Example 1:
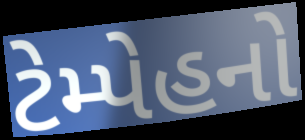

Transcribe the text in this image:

ટેમ્પેહનો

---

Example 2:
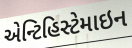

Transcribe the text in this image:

એન્ટિહિસ્ટેમાઇન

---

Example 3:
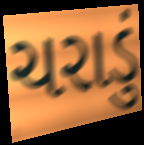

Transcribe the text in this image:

ચરાડું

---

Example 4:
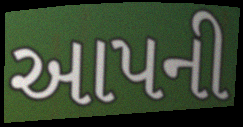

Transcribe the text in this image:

આપની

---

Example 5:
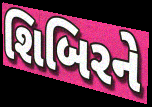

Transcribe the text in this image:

શિબિરને